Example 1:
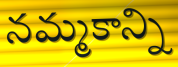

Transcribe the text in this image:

నమ్మకాన్ని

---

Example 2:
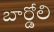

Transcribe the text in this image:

బార్డోలి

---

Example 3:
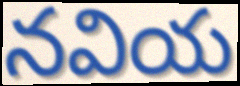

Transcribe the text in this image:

నవియ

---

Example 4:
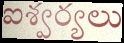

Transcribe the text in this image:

ఐశ్వర్యలు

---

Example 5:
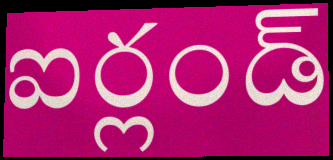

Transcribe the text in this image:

ఐర్లండ్